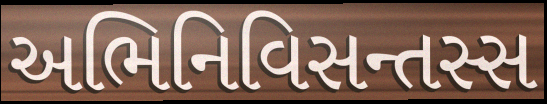
અભિનિવિસન્તસ્સ